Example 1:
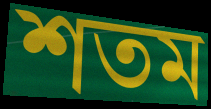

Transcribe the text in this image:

শতম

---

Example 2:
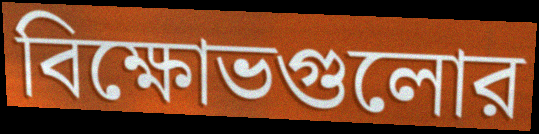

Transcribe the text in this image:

বিক্ষোভগুলোর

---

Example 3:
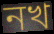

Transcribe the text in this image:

নখ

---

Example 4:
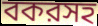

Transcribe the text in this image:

বকরসহ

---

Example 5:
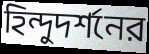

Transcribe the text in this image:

হিন্দুদর্শনের